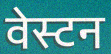
वेस्टन